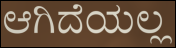
ಆಗಿದೆಯಲ್ಲ